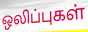
ஒலிப்புகள்